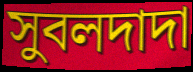
সুবলদাদা